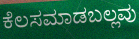
ಕೆಲಸಮಾಡಬಲ್ಲವು